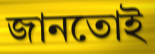
জানতোই